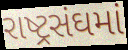
રાષ્ટ્રસંઘમાં